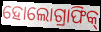
ହୋଲୋଗ୍ରାଫିକ୍